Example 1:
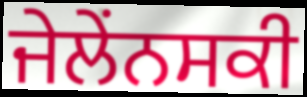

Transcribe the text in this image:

ਜੇਲੇਂਨਸਕੀ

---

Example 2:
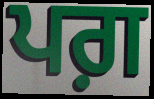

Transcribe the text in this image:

ਪਗ਼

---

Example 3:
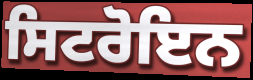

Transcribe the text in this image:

ਸਿਟਰੋਇਨ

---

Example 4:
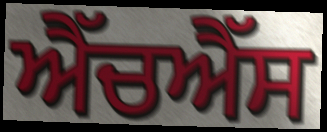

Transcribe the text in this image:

ਐੱਚਐੱਸ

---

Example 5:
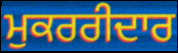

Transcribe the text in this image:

ਮੁਕਰਰੀਦਾਰ